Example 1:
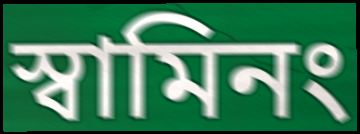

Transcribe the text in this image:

স্বামিনং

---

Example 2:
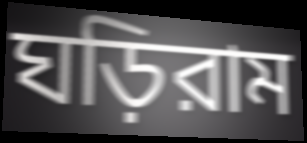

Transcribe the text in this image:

ঘড়িরাম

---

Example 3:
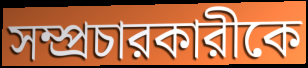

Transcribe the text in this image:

সম্প্রচারকারীকে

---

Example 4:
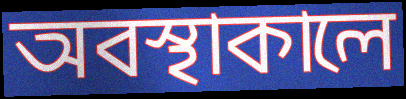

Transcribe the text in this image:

অবস্থাকালে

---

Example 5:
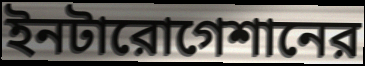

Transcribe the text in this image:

ইনটারোগেশানের